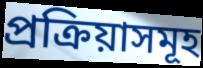
প্ৰক্ৰিয়াসমূহ